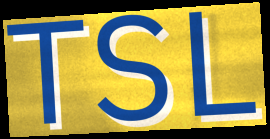
TSL